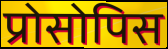
प्रोसोपिस